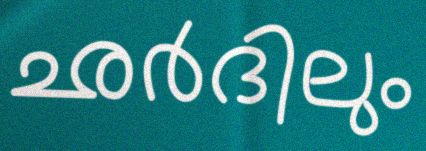
ഛർദിലും